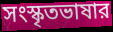
সংস্কৃতভাষার